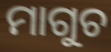
ମାଗୁଚ